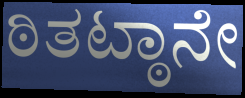
ಠಿತಟ್ಠಾನೇ